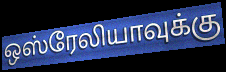
ஒஸ்ரேலியாவுக்கு